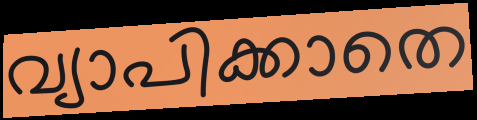
വ്യാപിക്കാതെ